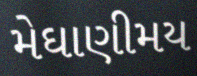
મેઘાણીમય